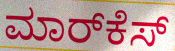
ಮಾರ್‌ಕೆಸ್